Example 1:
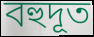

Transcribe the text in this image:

বহুদূত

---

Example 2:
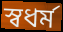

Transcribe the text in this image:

স্বধর্ম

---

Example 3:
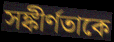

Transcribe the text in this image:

সঙ্কীর্ণতাকে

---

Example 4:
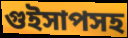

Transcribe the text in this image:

গুইসাপসহ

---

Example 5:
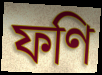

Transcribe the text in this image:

ফণি